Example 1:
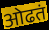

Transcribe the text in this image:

ओढतं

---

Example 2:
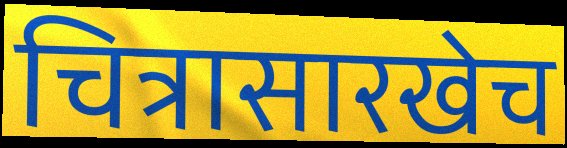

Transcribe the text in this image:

चित्रासारखेच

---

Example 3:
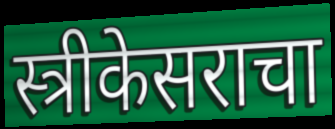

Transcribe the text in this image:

स्त्रीकेसराचा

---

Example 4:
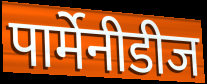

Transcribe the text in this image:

पार्मेनीडीज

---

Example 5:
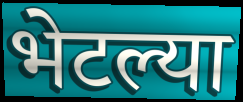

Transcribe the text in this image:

भेटल्या